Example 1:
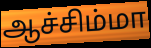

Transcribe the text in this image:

ஆச்சிம்மா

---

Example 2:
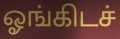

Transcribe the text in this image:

ஓங்கிடச்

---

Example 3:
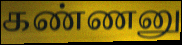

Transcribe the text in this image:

கண்ணனு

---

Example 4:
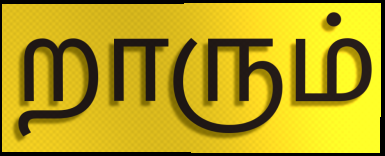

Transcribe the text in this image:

றாரும்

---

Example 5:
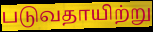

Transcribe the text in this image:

படுவதாயிற்று